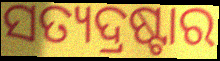
ସତ୍ୟଦ୍ରଷ୍ଟାର